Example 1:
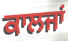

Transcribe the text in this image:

ਕਾਲਜਾਂ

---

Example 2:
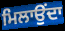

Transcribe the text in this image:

ਮਿਲਾਉਂਦਾ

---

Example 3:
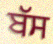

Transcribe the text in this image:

ਬੱਸ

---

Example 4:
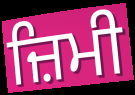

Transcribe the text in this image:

ਜ਼ਿਮੀ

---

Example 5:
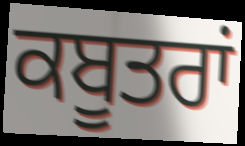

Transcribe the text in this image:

ਕਬੂਤਰਾਂ